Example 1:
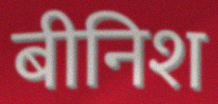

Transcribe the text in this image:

बीनिश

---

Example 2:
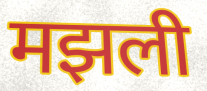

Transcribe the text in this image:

मझली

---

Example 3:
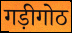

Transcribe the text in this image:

गड़ीगोठ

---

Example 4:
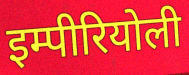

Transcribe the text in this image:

इम्पीरियोली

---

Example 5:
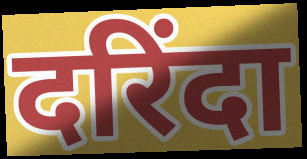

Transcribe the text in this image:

दरिंदा